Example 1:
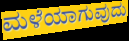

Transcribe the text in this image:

ಮಳೆಯಾಗುವುದು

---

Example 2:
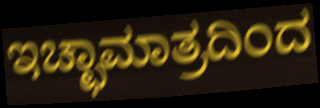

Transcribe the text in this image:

ಇಚ್ಛಾಮಾತ್ರದಿಂದ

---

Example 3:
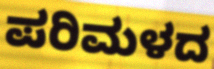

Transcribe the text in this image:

ಪರಿಮಳದ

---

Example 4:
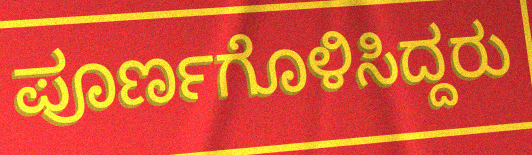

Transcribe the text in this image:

ಪೂರ್ಣಗೊಳಿಸಿದ್ದರು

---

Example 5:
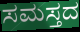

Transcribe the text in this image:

ಸಮಸ್ತದ